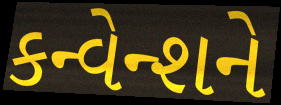
કન્વેન્શને